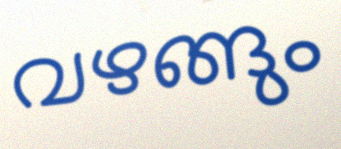
വഴങ്ങും